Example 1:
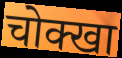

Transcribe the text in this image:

चोक्खा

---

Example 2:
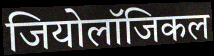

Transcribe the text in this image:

जियोलॉजिकल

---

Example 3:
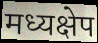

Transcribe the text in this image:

मध्यक्षेप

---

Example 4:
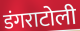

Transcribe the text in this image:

डंगराटोली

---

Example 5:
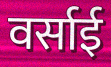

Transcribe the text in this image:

वर्साई